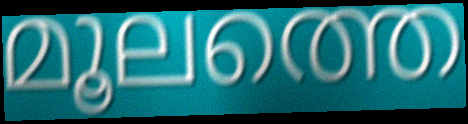
മൂലത്തെ